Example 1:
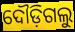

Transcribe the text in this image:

ଦୌଡ଼ିଗଲୁ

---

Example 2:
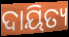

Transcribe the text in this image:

ଦାୟିତ୍ୟ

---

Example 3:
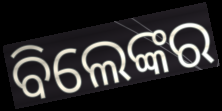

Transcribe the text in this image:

ବିଲେଙ୍କର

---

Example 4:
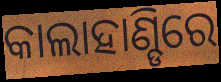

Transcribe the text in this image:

କାଲାହାଣ୍ଡିରେ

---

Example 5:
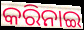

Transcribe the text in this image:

କରିନାଇ